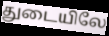
துடையிலே